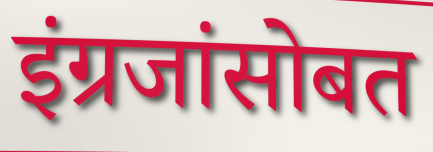
इंग्रजांसोबत